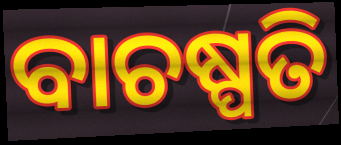
ବାଚଷ୍ପତି